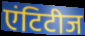
एंटिटीज